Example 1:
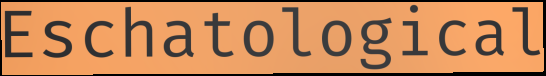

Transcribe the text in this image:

Eschatological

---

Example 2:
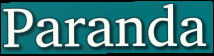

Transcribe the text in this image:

Paranda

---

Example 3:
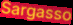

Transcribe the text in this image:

Sargasso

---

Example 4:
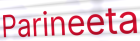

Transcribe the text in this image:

Parineeta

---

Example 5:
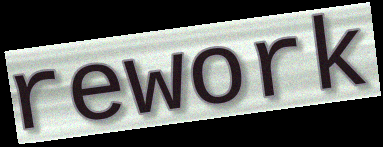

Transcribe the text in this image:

rework